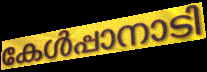
കേൾപ്പാനാടി